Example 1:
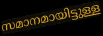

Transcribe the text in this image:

സമാനമായിട്ടുള്ള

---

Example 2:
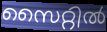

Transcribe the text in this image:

സൈറ്റിൽ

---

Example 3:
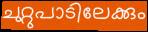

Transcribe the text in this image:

ചുറ്റുപാടിലേക്കും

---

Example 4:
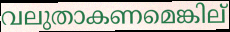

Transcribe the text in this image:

വലുതാകണമെങ്കില്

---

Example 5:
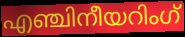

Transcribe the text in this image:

എഞ്ചിനീയറിംഗ്